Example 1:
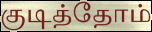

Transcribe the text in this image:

குடித்தோம்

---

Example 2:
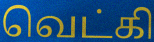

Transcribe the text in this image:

வெட்கி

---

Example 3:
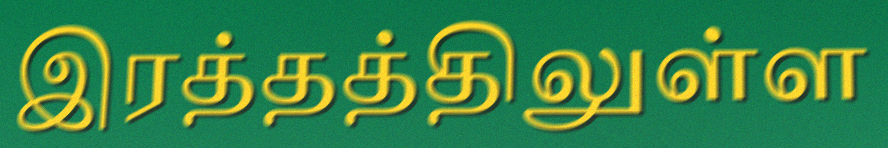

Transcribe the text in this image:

இரத்தத்திலுள்ள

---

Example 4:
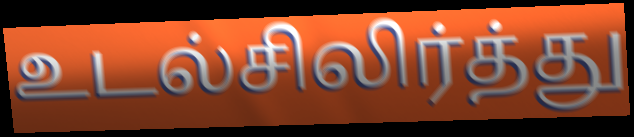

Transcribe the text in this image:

உடல்சிலிர்த்து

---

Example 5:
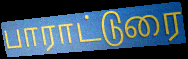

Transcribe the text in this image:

பாராட்டுரை